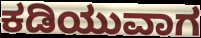
ಕಡಿಯುವಾಗ